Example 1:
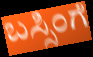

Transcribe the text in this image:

ಬಸ್ಸಿಂಗೆ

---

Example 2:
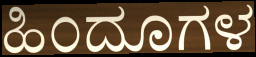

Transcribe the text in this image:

ಹಿಂದೂಗಳ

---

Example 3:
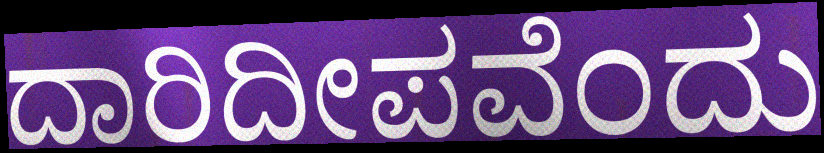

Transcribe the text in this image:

ದಾರಿದೀಪವೆಂದು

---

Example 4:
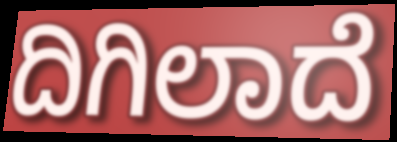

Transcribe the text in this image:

ದಿಗಿಲಾದೆ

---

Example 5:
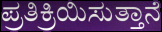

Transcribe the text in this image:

ಪ್ರತಿಕ್ರಿಯಿಸುತ್ತಾನೆ